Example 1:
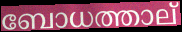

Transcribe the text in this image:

ബോധത്താല്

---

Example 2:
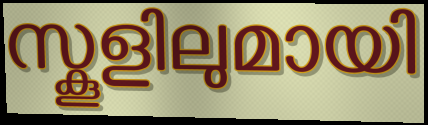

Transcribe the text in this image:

സ്കൂളിലുമായി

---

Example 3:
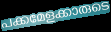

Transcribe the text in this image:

പക്കമേളക്കാരുടെ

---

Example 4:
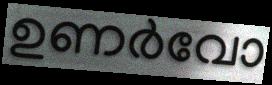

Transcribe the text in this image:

ഉണർവോ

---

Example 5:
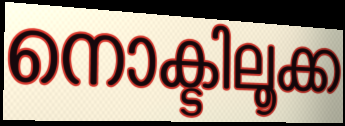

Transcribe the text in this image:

നൊക്ടിലൂക്ക